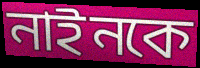
নাইনকে